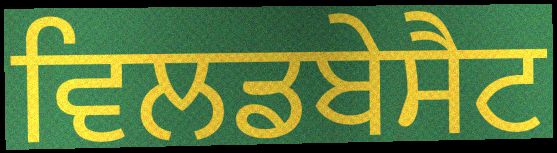
ਵਿਲਡਬੇਸੈਟ